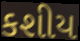
કશીય